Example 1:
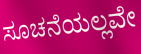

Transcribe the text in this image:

ಸೂಚನೆಯಲ್ಲವೇ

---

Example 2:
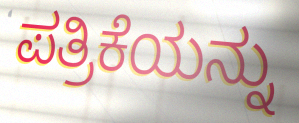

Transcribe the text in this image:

ಪತ್ರಿಕೆಯನ್ನು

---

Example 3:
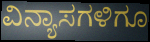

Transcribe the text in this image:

ವಿನ್ಯಾಸಗಳಿಗೂ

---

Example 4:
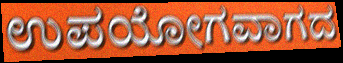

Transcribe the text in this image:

ಉಪಯೋಗವಾಗದ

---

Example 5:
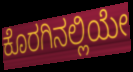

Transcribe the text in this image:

ಕೊರಗಿನಲ್ಲಿಯೇ